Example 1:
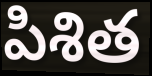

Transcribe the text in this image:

పిశిత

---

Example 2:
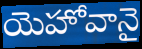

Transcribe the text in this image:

యెహోవానై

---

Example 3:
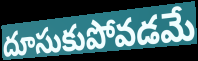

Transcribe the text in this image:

దూసుకుపోవడమే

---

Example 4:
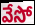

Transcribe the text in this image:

వేసో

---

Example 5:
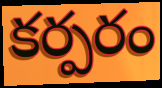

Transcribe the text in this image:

కర్పరం